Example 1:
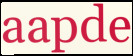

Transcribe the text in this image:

aapde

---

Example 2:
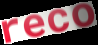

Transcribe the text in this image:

reco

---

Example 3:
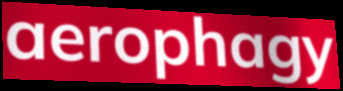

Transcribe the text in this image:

aerophagy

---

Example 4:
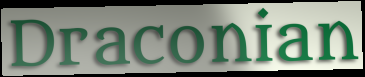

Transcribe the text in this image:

Draconian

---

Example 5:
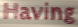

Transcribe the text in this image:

Having